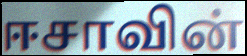
ஈசாவின்